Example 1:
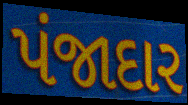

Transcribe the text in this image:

પંજાદાર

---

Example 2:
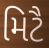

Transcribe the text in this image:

મિટૈ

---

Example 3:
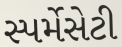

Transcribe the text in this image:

સ્પર્મેસેટી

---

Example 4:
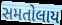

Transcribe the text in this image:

સમતોલાય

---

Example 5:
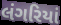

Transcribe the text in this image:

લંગરિયાં